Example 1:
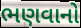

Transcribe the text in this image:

ભણવાનો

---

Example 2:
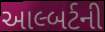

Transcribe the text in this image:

આલ્બર્ટની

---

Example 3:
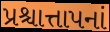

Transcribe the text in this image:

પ્રશ્ચાત્તાપનાં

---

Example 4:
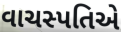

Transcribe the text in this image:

વાચસ્પતિએ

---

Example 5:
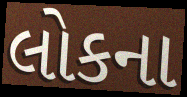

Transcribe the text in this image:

લોકના